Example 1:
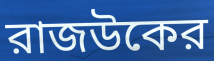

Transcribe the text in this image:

রাজউকের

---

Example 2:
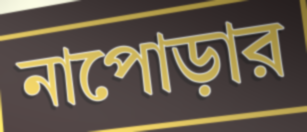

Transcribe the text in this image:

নাপোড়ার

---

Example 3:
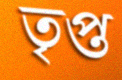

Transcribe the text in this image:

তৃপ্ত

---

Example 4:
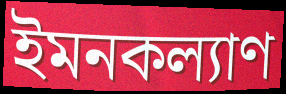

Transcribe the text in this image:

ইমনকল্যাণ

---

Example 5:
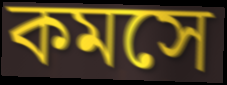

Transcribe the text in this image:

কমসে